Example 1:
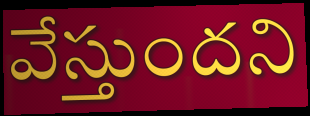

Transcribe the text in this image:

వేస్తుందని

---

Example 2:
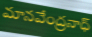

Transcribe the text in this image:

మానవేంద్రనాధ్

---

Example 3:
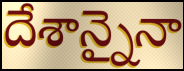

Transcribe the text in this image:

దేశాన్నైనా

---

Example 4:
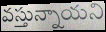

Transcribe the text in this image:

వస్తున్నాయని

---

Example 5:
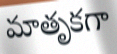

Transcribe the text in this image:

మాతృకగా